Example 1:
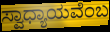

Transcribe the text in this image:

ಸ್ವಾಧ್ಯಾಯವೆಂಬ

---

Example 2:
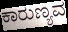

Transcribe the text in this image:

ಕಾರುಣ್ಯವ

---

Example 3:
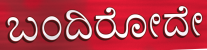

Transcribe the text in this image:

ಬಂದಿರೋದೇ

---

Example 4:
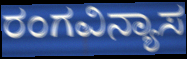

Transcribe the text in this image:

ರಂಗವಿನ್ಯಾಸ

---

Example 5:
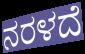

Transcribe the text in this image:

ನರಳದೆ